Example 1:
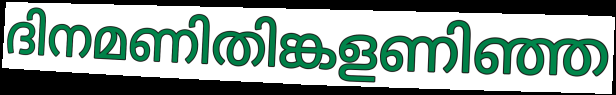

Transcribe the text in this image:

ദിനമണിതിങ്കളണിഞ്ഞ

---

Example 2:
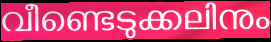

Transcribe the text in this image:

വീണ്ടെടുക്കലിനും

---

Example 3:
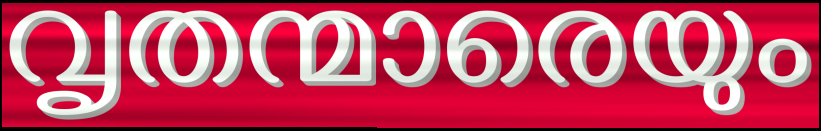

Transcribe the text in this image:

വൃതന്മാരെയും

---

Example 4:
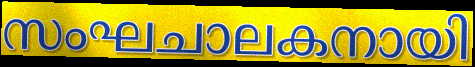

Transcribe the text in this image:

സംഘചാലകനായി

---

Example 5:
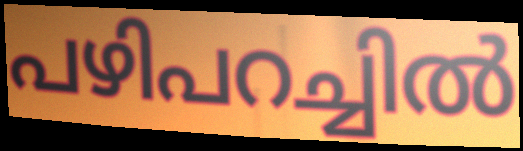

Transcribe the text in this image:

പഴിപറച്ചിൽ